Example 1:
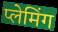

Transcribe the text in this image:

प्लेमिंग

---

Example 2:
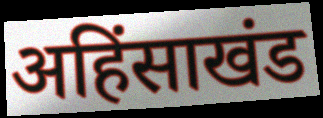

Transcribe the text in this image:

अहिंसाखंड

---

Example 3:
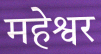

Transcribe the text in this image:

महेश्वर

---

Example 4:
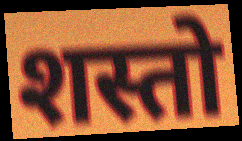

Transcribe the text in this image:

शस्तो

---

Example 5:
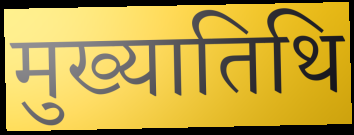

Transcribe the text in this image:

मुख्यातिथि